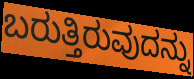
ಬರುತ್ತಿರುವುದನ್ನು